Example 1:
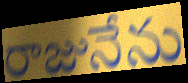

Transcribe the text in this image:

రాజునేను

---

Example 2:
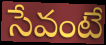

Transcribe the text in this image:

సేవంటే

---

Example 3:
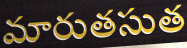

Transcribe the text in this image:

మారుతసుత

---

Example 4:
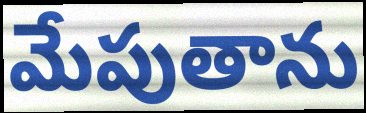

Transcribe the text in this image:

మేపుతాను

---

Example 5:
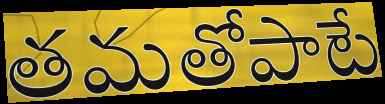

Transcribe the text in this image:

తమతోపాటే